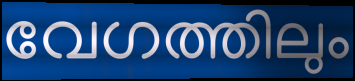
വേഗത്തിലും